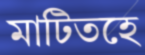
মাটিতহে